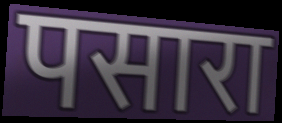
पसारा